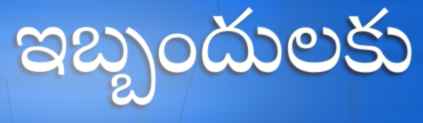
ఇబ్బందులకు